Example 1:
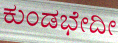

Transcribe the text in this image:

ಕುಂಡಭೇದೀ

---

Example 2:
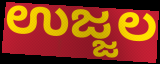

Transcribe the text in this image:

ಉಜ್ಜಲ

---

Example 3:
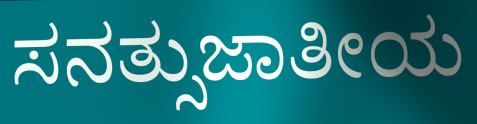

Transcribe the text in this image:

ಸನತ್ಸುಜಾತೀಯ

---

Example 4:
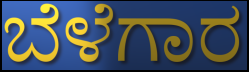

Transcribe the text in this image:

ಬೆಳೆಗಾರ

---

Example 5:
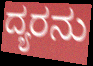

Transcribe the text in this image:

ದ್ಯರನು